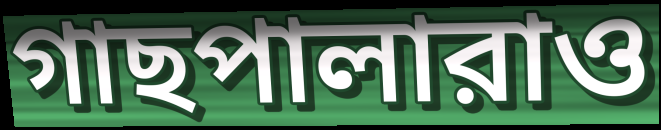
গাছপালারাও